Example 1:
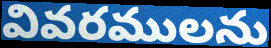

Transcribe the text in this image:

వివరములను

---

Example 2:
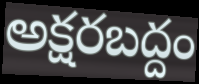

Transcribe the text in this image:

అక్షరబద్దం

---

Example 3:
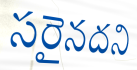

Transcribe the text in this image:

సరైనదని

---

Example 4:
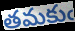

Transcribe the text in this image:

తమకుఁ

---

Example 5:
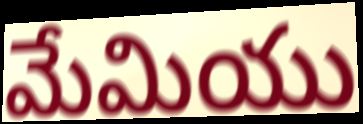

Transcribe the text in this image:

మేమియు